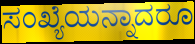
ಸಂಖ್ಯೆಯನ್ನಾದರೂ